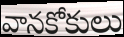
వానకోకులు